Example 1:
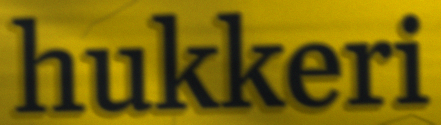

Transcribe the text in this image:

hukkeri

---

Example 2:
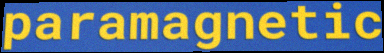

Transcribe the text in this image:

paramagnetic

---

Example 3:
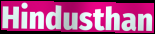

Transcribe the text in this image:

Hindusthan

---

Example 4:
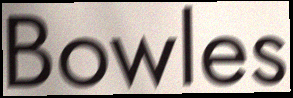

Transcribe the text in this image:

Bowles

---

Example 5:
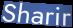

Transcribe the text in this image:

Sharir